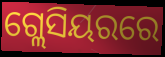
ଗ୍ଲେସିୟରରେ